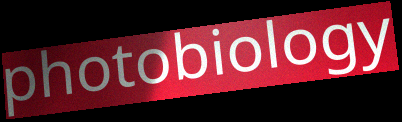
photobiology